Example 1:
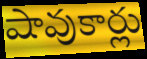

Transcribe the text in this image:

షావుకార్లు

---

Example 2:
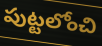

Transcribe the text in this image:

పుట్టలోంచి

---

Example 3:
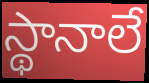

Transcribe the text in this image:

స్థానాలే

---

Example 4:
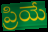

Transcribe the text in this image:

ప్రియే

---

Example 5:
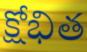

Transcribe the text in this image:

క్షోభిత